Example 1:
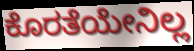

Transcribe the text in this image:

ಕೊರತೆಯೇನಿಲ್ಲ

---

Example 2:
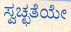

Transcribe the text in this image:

ಸ್ವಚ್ಛತೆಯೇ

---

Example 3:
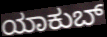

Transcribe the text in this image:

ಯಾಕುಬ್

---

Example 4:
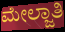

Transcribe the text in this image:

ಮೇಲ್ಜಾತಿ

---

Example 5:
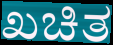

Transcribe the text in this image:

ಖಚಿತ